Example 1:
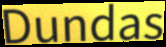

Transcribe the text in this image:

Dundas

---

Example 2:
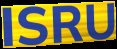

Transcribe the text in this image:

ISRU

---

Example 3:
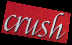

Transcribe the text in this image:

crush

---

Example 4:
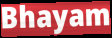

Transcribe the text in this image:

Bhayam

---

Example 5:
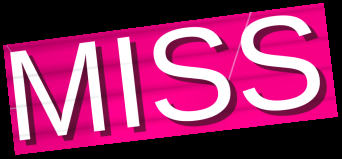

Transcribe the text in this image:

MISS